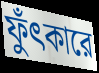
ফুঁৎকারে